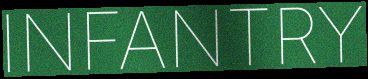
INFANTRY